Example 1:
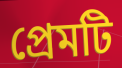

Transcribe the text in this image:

প্রেমটি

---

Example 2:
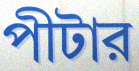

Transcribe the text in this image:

পীটার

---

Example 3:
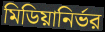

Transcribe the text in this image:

মিডিয়ানির্ভর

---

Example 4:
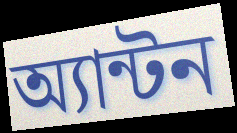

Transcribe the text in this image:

অ্যান্টন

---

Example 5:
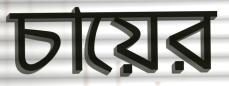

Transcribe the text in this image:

চায়ের